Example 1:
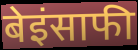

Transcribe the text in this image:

बेइंसाफी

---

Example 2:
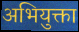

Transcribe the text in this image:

अभियुक्ता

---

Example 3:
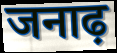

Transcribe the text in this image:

जनाढ़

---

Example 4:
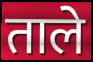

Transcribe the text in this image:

ताले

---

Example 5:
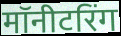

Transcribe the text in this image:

मॉनीटरिंग